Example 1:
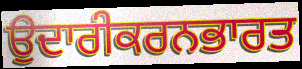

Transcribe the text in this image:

ਉਦਾਰੀਕਰਨਭਾਰਤ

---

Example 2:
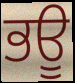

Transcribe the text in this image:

ਭਊ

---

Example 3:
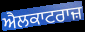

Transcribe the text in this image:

ਐਲਕਾਟਰਾਜ਼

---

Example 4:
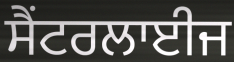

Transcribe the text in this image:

ਸੈਂਟਰਲਾਈਜ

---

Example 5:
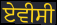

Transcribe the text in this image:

ਏਵੀਸੀ